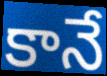
కానే